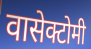
वासेक्टोमी